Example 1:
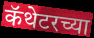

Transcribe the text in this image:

कॅथेटरच्या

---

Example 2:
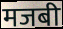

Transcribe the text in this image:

मजबी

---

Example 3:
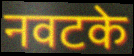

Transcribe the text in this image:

नवटके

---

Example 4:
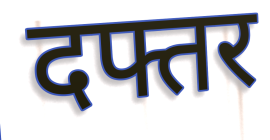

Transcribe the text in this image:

दफ्तर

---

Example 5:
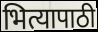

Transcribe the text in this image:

भित्यापाठी